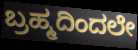
ಬ್ರಹ್ಮದಿಂದಲೇ